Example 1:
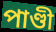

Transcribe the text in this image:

পাণ্ডী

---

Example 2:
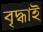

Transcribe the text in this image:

বৃদ্ধাই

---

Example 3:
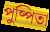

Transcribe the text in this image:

পুষ্পিতা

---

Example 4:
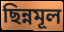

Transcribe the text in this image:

ছিন্নমূল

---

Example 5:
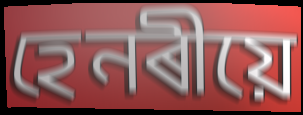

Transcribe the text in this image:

হেনৰীয়ে